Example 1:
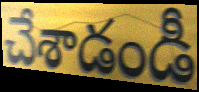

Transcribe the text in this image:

చేశాడండీ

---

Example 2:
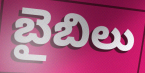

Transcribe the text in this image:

బైబిలు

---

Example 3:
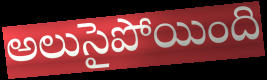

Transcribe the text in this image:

అలుసైపోయింది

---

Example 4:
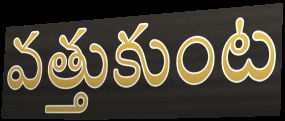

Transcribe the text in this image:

వత్తుకుంట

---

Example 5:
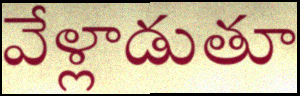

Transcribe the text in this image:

వేళ్లాడుతూ